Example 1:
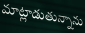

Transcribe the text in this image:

మాట్లాడుతున్నాను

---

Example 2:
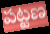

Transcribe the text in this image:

పట్టణ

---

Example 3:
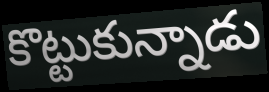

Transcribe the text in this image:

కొట్టుకున్నాడు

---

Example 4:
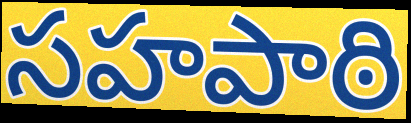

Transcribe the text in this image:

సహపాఠి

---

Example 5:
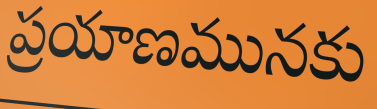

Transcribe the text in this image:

ప్రయాణమునకు